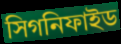
সিগনিফাইড